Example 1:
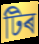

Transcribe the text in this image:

টিৰ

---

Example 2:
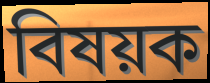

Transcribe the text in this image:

বিষয়ক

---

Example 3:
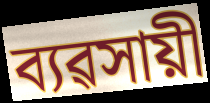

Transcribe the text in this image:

ব্যৱসায়ী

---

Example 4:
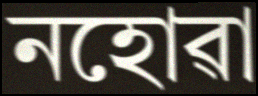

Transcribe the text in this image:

নহোৱা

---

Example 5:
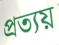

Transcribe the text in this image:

প্ৰত্যয়